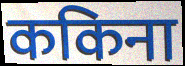
ककिना